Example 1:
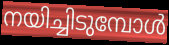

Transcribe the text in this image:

നയിച്ചിടുമ്പോൾ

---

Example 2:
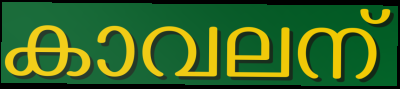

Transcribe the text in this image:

കാവലന്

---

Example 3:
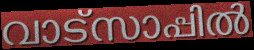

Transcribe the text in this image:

വാട്സാപ്പിൽ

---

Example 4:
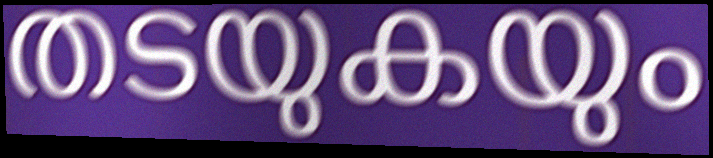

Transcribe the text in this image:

തടയുകയും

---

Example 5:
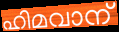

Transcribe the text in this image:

ഹിമവാന്